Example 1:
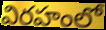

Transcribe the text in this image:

విరహంలో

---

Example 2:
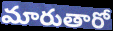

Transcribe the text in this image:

మారుతారో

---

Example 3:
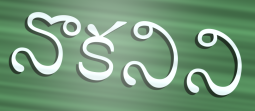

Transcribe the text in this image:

నొకనిని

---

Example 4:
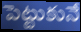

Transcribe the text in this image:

పెట్టుకునే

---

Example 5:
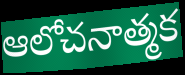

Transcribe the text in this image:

ఆలోచనాత్మక